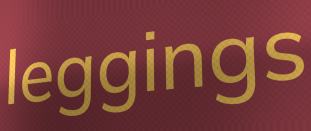
leggings